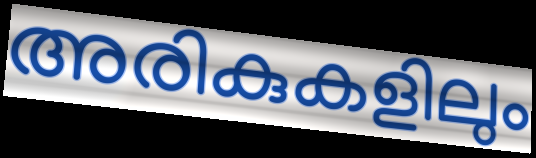
അരികുകളിലും